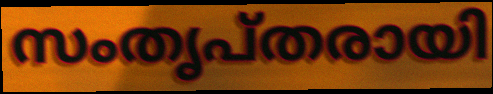
സംതൃപ്തരായി